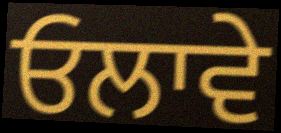
ਓਲਾਵੇ